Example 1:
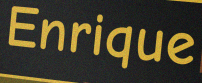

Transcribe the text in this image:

Enrique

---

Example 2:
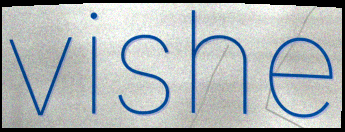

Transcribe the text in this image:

vishe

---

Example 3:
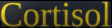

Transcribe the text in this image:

Cortisol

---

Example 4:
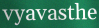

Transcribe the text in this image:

vyavasthe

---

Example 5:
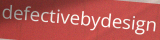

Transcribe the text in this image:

defectivebydesign